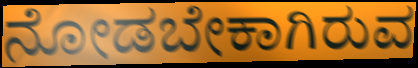
ನೋಡಬೇಕಾಗಿರುವ